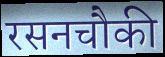
रसनचौकी